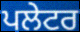
ਪਲੇਟਰ